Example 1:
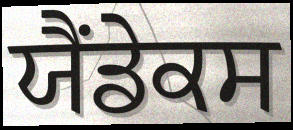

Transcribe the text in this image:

ਯੈਂਡੇਕਸ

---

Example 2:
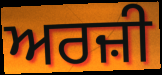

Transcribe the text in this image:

ਅਰਜ਼ੀ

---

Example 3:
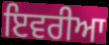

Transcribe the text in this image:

ਇਵਰੀਆ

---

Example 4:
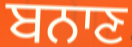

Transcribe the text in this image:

ਬਨਾਣ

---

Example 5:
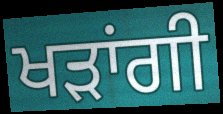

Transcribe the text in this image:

ਖੜਾਂਗੀ